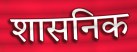
शासनिक